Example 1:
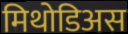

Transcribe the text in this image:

मिथोडिअस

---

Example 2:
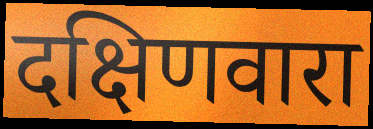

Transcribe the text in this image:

दक्षिणवारा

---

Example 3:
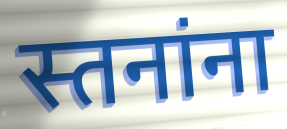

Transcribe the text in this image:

स्तनांना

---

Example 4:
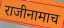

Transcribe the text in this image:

राजीनामाच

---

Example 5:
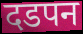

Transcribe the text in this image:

दडपन